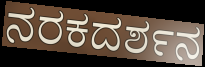
ನರಕದರ್ಶನ